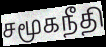
சமூகநீதி